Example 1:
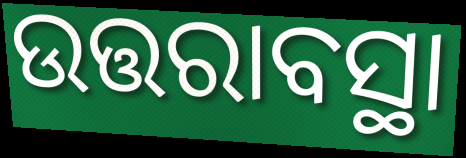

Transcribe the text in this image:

ଉତ୍ତରାବସ୍ଥା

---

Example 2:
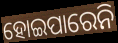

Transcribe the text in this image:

ହୋଇପାରେନି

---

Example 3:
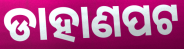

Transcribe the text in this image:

ଡାହାଣପଟ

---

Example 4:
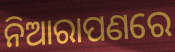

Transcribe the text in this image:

ନିଆରାପଣରେ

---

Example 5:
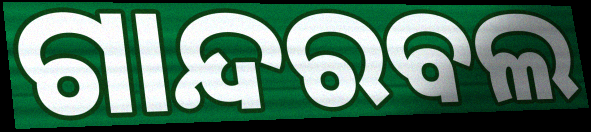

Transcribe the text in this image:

ଗାନ୍ଦରବଲ